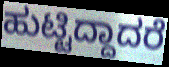
ಹುಟ್ಟಿದ್ದಾದರೆ